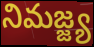
నిమజ్జ్య